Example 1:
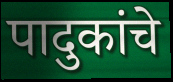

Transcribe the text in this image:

पादुकांचे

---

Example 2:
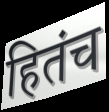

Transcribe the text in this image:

हितंच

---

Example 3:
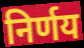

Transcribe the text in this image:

निर्णय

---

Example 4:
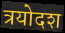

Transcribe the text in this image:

त्रयोदश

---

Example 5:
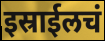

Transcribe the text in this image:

इस्राईलचं